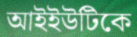
আইইউটিকে